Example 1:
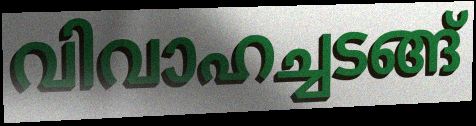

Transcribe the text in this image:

വിവാഹച്ചടങ്ങ്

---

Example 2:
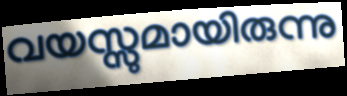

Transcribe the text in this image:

വയസ്സുമായിരുന്നു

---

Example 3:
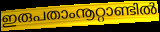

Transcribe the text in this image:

ഇരുപതാംനൂറ്റാണ്ടിൽ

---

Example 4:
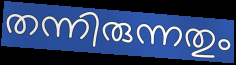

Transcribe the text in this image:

തന്നിരുന്നതും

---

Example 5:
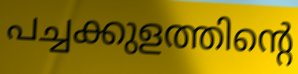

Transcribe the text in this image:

പച്ചക്കുളത്തിന്റെ